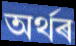
অৰ্থৰ